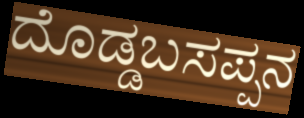
ದೊಡ್ಡಬಸಪ್ಪನ